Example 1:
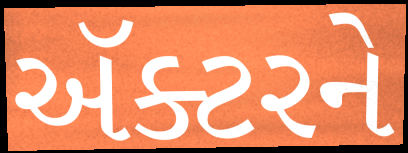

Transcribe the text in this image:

ઍક્ટરને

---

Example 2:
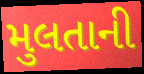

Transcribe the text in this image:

મુલતાની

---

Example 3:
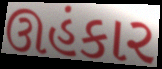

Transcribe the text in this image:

ઊહંકાર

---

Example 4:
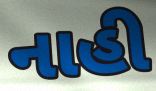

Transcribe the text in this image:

નાહી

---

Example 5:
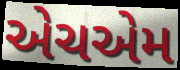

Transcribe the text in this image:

એચએમ